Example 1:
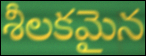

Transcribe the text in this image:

శీలకమైన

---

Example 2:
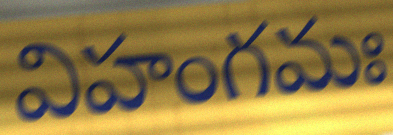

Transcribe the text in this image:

విహంగమః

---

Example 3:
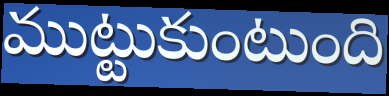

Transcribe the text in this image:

ముట్టుకుంటుంది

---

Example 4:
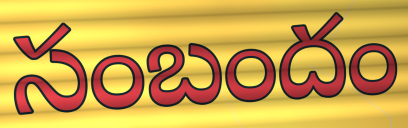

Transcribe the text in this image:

సంబందం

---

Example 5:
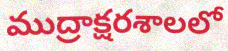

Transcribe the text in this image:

ముద్రాక్షరశాలలో